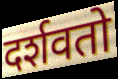
दर्शवतो